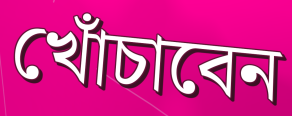
খোঁচাবেন